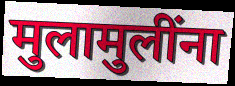
मुलामुलींना